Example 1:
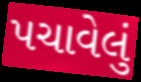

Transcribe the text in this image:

પચાવેલું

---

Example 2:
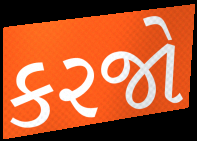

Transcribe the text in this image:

કરજો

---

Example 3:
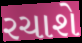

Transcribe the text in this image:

રચાશે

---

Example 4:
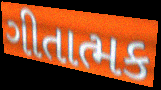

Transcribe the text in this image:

ગીતાત્મક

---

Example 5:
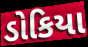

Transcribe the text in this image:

ડોકિયા